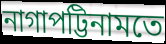
নাগাপট্টিনামতে